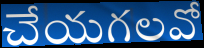
చేయగలవో